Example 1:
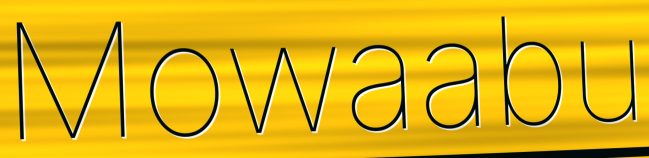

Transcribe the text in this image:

Mowaabu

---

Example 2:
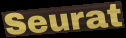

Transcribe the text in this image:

Seurat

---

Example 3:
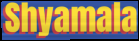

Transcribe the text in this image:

Shyamala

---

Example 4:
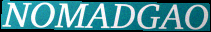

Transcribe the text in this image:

NOMADGAO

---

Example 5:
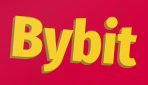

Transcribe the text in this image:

Bybit